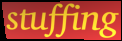
stuffing